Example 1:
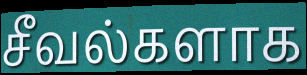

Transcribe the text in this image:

சீவல்களாக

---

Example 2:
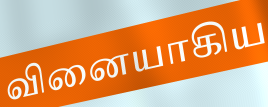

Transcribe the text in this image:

வினையாகிய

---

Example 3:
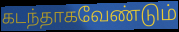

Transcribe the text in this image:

கடந்தாகவேண்டும்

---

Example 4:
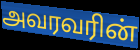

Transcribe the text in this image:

அவரவரின்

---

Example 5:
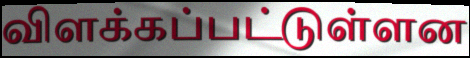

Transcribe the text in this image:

விளக்கப்பட்டுள்ளன